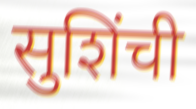
सुशिंची